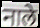
नाले